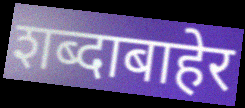
शब्दाबाहेर